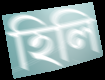
হিলি